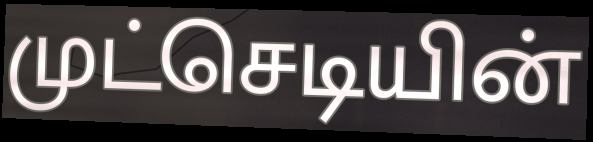
முட்செடியின்